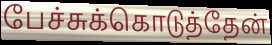
பேச்சுக்கொடுத்தேன்